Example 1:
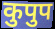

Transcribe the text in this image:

कुपुप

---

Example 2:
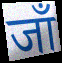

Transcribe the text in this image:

जाँ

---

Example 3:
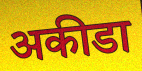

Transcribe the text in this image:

अकीडा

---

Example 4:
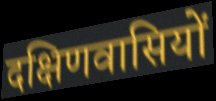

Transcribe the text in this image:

दक्षिणवासियों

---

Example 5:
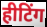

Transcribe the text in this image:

हीटिंग